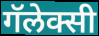
गॅलेक्सी